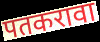
पतकरावा